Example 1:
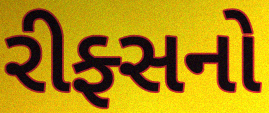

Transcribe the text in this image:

રીફ્સનો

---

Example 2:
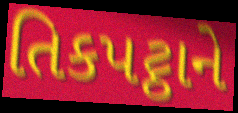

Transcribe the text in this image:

તિકપટ્ઠાને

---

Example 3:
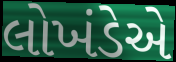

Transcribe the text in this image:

લોખંડેએ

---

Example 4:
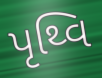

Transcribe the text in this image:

પૃથ્વિ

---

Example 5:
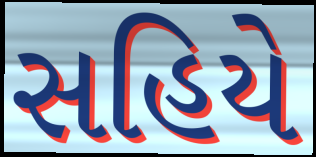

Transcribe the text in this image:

સહિયે